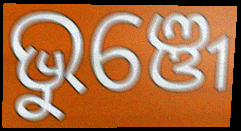
ଭୁଞ୍ଜେ